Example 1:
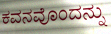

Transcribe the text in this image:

ಕವನವೊಂದನ್ನು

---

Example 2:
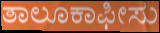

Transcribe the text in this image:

ತಾಲೂಕಾಫೀಸು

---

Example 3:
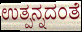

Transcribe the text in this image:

ಉತ್ಪನ್ನದಂತೆ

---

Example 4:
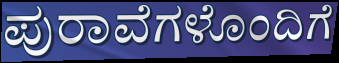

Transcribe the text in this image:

ಪುರಾವೆಗಳೊಂದಿಗೆ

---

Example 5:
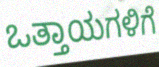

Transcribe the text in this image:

ಒತ್ತಾಯಗಳಿಗೆ